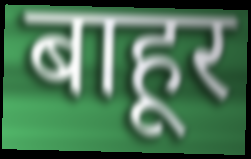
बाहूर